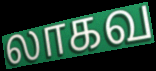
லாகவ